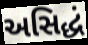
અસિદ્ધં